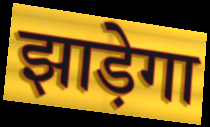
झाड़ेगा